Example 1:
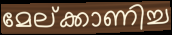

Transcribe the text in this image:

മേല്ക്കാണിച്ച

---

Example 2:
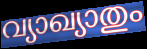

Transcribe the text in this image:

വ്യാഖ്യാതും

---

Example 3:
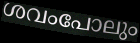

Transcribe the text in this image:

ശവംപോലും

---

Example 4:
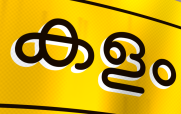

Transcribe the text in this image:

കളം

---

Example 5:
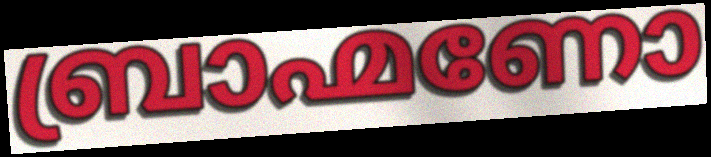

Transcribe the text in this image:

ബ്രാഹ്മണോ